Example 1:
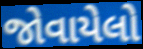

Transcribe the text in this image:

જોવાયેલો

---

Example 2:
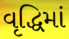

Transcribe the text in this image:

વૃદ્ધિમાં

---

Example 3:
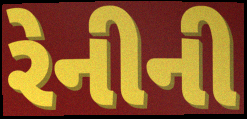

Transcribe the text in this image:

રેનીની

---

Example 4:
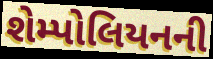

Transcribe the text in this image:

શેમ્પોલિયનની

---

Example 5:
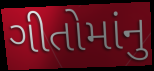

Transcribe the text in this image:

ગીતોમાંનુ